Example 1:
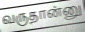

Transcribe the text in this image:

வருதான்னு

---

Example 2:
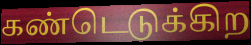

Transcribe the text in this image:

கண்டெடுக்கிற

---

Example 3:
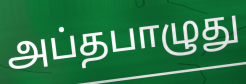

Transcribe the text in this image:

அப்தபாழுது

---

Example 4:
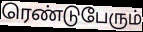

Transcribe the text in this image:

ரெண்டுபேரும்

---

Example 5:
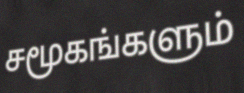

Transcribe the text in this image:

சமூகங்களும்